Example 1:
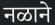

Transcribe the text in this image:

नळाने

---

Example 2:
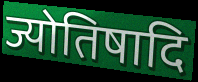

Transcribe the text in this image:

ज्योतिषादि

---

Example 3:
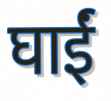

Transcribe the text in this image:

घाईं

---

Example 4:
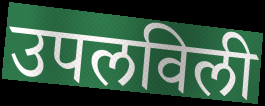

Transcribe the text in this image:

उपलविली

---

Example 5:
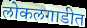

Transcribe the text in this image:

लोकलगाडीत